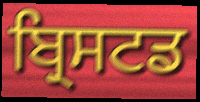
ਬ੍ਰਿਸਟਡ